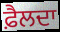
ਫ਼ੈਲਦਾ